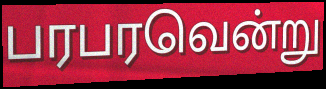
பரபரவென்று